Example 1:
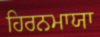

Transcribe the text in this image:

ਹਿਰਨਮਾਯਾ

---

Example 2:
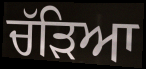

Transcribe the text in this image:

ਚੱੜਿਆ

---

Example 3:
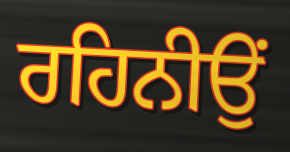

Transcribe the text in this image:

ਰਹਿਨੀਉਂ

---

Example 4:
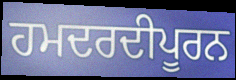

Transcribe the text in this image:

ਹਮਦਰਦੀਪੂਰਨ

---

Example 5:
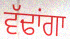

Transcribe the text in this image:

ਵੱਢਾਂਗਾ